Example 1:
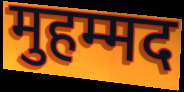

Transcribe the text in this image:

मुहम्मद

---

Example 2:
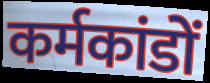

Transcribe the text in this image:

कर्मकांडों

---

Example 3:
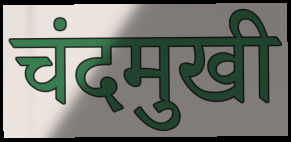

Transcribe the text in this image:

चंदमुखी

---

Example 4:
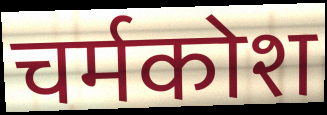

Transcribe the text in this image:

चर्मकोश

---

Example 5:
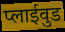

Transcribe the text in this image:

प्लाईवुड